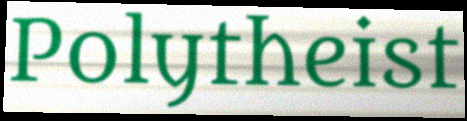
Polytheist